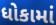
ધોકામાં